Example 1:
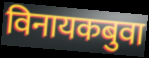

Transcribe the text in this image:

विनायकबुवा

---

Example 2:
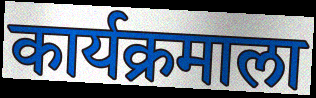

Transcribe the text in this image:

कार्यक्रमाला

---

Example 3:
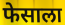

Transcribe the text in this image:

फेसाला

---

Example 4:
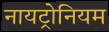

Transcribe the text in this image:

नायट्रोनियम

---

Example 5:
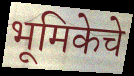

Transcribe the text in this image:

भूमिकेचे